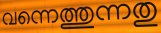
വന്നെത്തുന്നതു